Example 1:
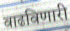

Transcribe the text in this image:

वाढविणारी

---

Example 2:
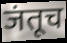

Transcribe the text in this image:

जंतूच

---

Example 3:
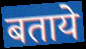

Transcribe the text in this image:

बताये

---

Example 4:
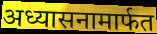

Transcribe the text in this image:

अध्यासनामार्फत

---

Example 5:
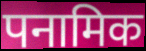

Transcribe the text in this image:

पनामिक